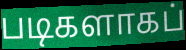
படிகளாகப்